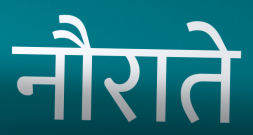
नौराते